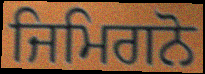
ਜਿਮਿਗਨੋ